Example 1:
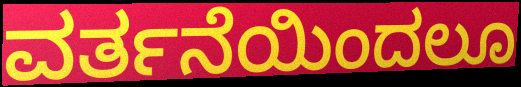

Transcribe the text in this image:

ವರ್ತನೆಯಿಂದಲೂ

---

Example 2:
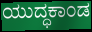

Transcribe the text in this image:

ಯುದ್ಧಕಾಂಡ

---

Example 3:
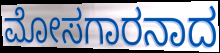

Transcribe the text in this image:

ಮೋಸಗಾರನಾದ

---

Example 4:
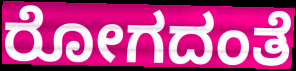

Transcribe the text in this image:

ರೋಗದಂತೆ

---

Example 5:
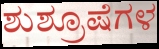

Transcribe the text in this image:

ಶುಶ್ರೂಷೆಗಳ